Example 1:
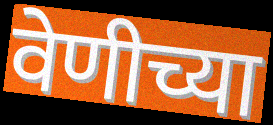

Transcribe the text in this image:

वेणीच्या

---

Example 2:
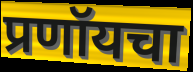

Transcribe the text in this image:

प्रणॉयचा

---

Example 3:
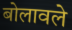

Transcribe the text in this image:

बोलावले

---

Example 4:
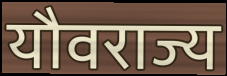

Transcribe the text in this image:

यौवराज्य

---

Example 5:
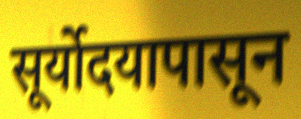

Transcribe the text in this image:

सूर्योदयापासून